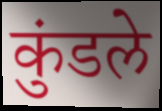
कुंडले